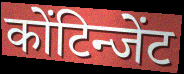
कोंटिन्जेंट